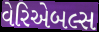
વેરિએબલ્સ